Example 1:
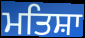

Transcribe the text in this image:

ਮਤਿਸ਼ਾ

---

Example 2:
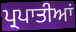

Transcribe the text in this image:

ਪ੍ਰਪਾਤੀਆਂ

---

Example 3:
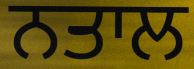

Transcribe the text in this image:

ਨਤਾਲ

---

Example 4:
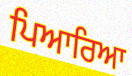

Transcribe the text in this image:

ਪਿਆਰਿਆ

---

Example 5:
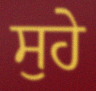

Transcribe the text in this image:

ਸੁਹੇ